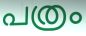
പത്രം